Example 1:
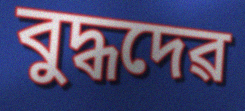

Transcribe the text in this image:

বুদ্ধদেৱ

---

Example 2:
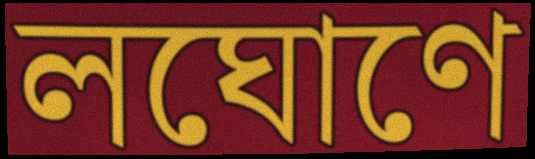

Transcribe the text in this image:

লঘোণে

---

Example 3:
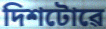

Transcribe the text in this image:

দিশটোৱে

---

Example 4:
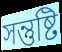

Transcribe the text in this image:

সন্তুষ্টি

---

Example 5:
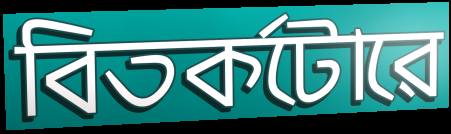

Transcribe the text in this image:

বিতৰ্কটোৱে